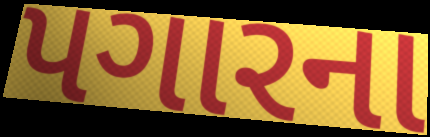
પગારના